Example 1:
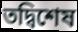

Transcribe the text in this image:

তদ্বিশেষ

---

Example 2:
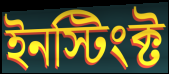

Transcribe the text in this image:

ইনস্টিংক্ট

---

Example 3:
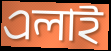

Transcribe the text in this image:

এলাই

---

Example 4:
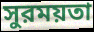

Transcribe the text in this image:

সুরময়তা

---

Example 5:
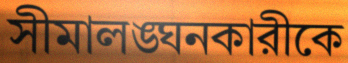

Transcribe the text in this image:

সীমালঙ্ঘনকারীকে